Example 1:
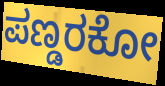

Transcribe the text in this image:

ಪಣ್ಡರಕೋ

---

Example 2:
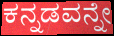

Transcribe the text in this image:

ಕನ್ನಡವನ್ನೇ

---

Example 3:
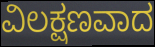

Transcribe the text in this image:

ವಿಲಕ್ಷಣವಾದ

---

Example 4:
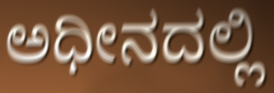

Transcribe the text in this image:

ಅಧೀನದಲ್ಲಿ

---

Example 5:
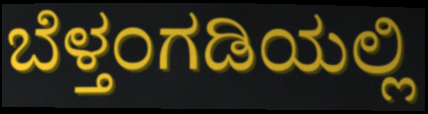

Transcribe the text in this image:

ಬೆಳ್ತಂಗಡಿಯಲ್ಲಿ